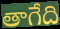
తాగేది